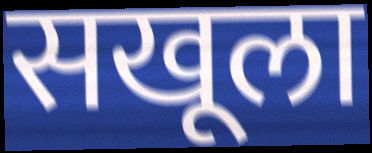
सखूला